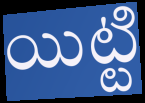
యిట్టి